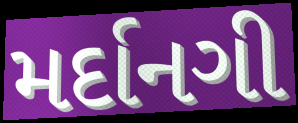
મર્દાનગી